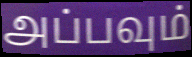
அப்பவும்